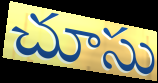
చూసు